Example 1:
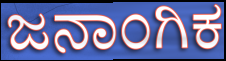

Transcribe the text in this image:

ಜನಾಂಗಿಕ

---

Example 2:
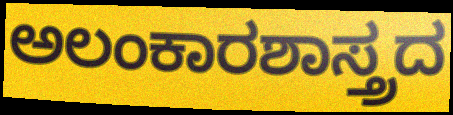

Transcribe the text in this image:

ಅಲಂಕಾರಶಾಸ್ತ್ರದ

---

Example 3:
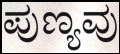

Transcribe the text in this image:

ಪುಣ್ಯವು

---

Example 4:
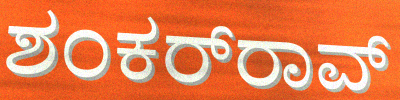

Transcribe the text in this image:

ಶಂಕರ್‌ರಾವ್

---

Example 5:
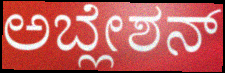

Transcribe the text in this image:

ಅಬ್ಲೇಶನ್